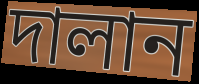
দালান